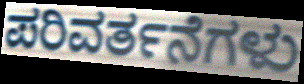
ಪರಿವರ್ತನೆಗಳು